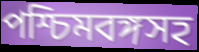
পশ্চিমবঙ্গসহ